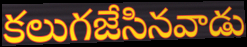
కలుగజేసినవాడు